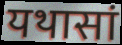
यथासां